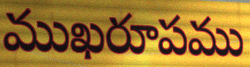
ముఖరూపము